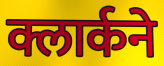
क्लार्कने